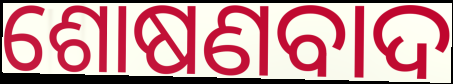
ଶୋଷଣବାଦ